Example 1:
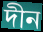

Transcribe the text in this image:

দীন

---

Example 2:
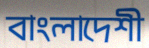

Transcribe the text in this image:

বাংলাদেশী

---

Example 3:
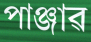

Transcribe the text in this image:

পাঞ্জাৱ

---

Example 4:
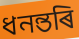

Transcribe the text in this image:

ধনন্তৰি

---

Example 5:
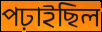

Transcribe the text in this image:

পঢ়াইছিল